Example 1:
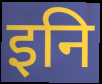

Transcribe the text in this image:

इनि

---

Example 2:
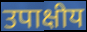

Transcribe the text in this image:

उपाक्षीय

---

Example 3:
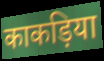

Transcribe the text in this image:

काकड़िया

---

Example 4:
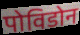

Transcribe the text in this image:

पोविडोन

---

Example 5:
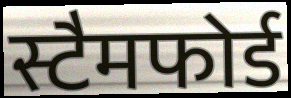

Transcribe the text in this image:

स्टैमफोर्ड